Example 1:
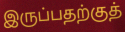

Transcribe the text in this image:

இருப்பதற்குத்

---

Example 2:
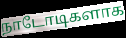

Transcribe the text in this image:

நாடோடிகளாக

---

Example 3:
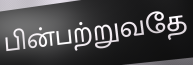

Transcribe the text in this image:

பின்பற்றுவதே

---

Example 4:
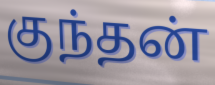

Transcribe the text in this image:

குந்தன்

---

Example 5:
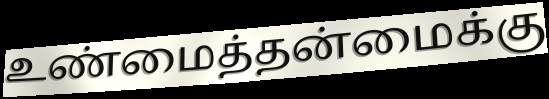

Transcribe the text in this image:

உண்மைத்தன்மைக்கு